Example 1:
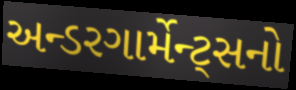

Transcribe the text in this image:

અન્ડરગાર્મેન્ટ્સનો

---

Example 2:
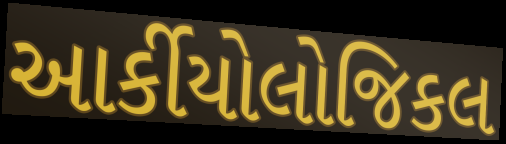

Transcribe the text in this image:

આર્કીયોલોજિકલ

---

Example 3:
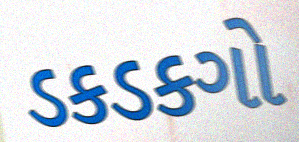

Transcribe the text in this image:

ડકડકગો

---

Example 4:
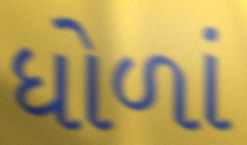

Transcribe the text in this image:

ધોળાં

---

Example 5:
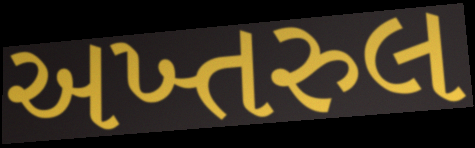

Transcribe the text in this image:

અખ્તરુલ